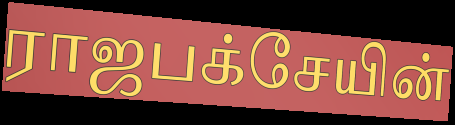
ராஜபக்சேயின்